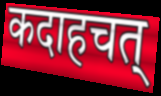
कदाहचत्